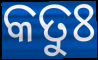
କତୁଃ